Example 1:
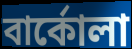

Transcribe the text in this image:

বার্কোলা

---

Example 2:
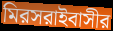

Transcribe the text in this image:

মিরসরাইবাসীর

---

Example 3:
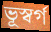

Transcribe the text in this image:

ভূস্বর্গ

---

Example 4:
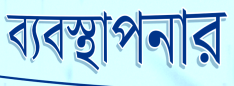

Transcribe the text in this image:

ব্যবস্থাপনার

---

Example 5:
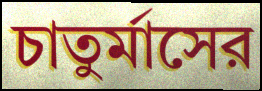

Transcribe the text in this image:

চাতুর্মাসের